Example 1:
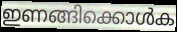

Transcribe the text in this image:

ഇണങ്ങിക്കൊൾക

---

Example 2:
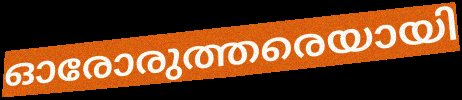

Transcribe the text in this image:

ഓരോരുത്തരെയായി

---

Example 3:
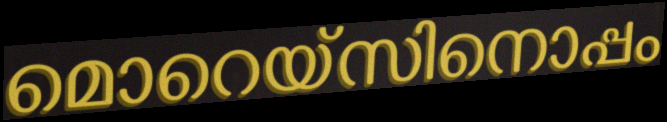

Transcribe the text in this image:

മൊറെയ്സിനൊപ്പം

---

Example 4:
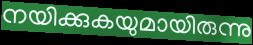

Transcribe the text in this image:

നയിക്കുകയുമായിരുന്നു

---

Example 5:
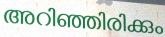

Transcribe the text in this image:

അറിഞ്ഞിരിക്കും